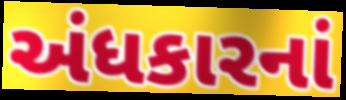
અંધકારનાં